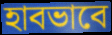
হাবভাবে